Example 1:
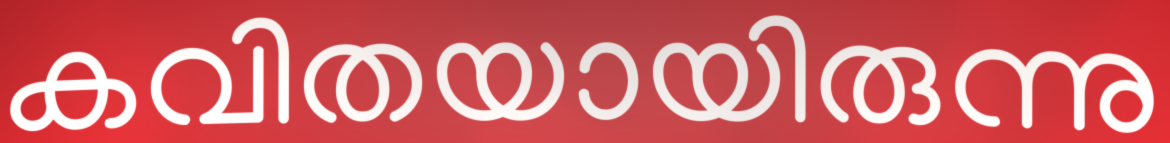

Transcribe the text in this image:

കവിതയായിരുന്നു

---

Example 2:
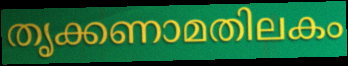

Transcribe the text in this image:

തൃക്കണാമതിലകം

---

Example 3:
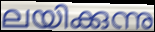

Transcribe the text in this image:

ലയിക്കുന്നു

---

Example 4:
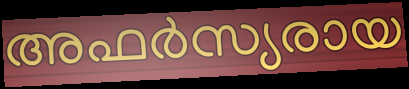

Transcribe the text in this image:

അഫർസ്യരായ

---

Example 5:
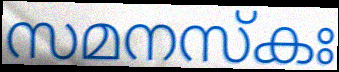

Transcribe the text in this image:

സമനസ്കഃ